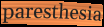
paresthesia